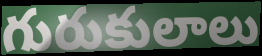
గురుకులాలు